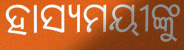
ହାସ୍ୟମୟୀଙ୍କୁ